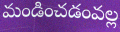
మండించడంవల్ల